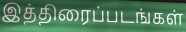
இத்திரைப்படங்கள்